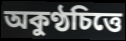
অকুণ্ঠচিত্তে